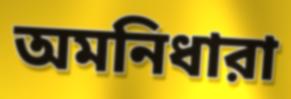
অমনিধারা